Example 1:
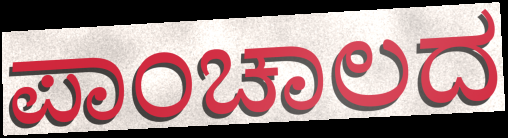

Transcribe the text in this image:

ಪಾಂಚಾಲದ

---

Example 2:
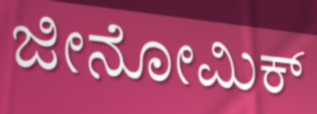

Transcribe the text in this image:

ಜೀನೋಮಿಕ್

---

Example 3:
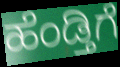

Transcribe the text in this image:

ಹೆಂಡ್ತಿಗೆ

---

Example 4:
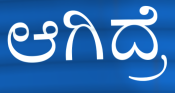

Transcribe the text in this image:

ಆಗಿದ್ರೆ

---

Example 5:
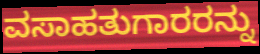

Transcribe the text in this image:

ವಸಾಹತುಗಾರರನ್ನು